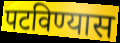
पटविण्यास